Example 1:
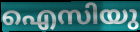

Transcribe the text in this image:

ഐസിയു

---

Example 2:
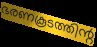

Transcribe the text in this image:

ഭരണകൂടത്തിന്റ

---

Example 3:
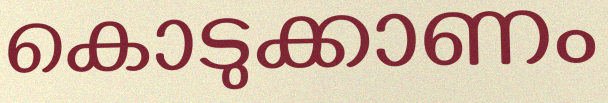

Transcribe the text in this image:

കൊടുക്കാണം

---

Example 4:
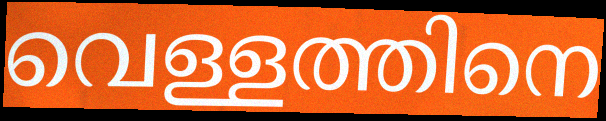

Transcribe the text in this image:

വെള്ളത്തിനെ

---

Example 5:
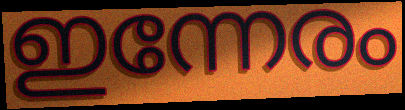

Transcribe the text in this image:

ഇന്നേരം